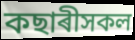
কছাৰীসকল